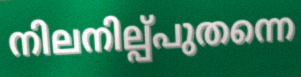
നിലനില്പ്പുതന്നെ